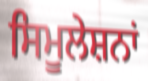
ਸਿਮੂਲੇਸ਼ਨਾਂ